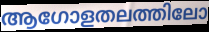
ആഗോളതലത്തിലോ